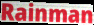
Rainman